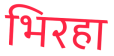
भिरहा